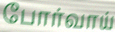
போர்வாய்